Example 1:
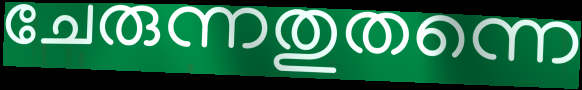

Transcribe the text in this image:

ചേരുന്നതുതന്നെ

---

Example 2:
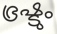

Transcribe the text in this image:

ഭ്രഷ്ടും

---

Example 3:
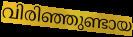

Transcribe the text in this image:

വിരിഞ്ഞുണ്ടായ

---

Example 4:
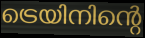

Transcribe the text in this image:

ട്രെയിനിന്റെ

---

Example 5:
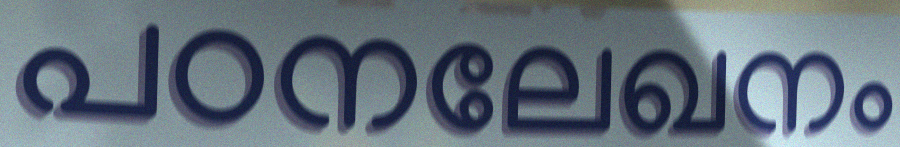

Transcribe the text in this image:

പഠനലേഖനം